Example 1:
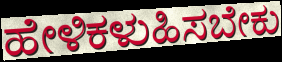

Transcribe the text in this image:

ಹೇಳಿಕಳುಹಿಸಬೇಕು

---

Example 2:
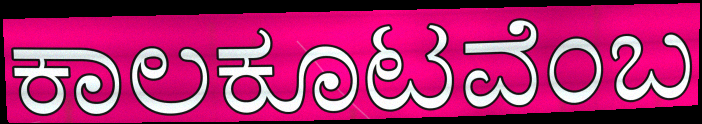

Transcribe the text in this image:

ಕಾಲಕೂಟವೆಂಬ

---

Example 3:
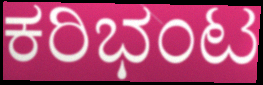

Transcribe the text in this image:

ಕರಿಭಂಟ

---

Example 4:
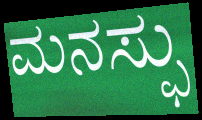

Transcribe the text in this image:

ಮನಸ್ಫು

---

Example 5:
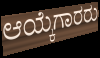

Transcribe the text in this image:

ಆಯ್ಕೆಗಾರರು